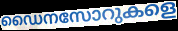
ഡൈനസോറുകളെ